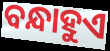
ବନ୍ଧାହୁଏ